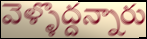
వెళ్ళొద్దన్నారు